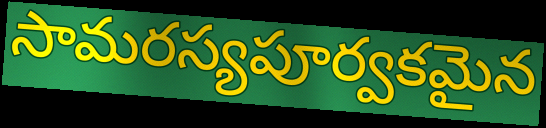
సామరస్యపూర్వకమైన